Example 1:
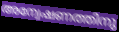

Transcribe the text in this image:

അന്വേഷണത്തിനു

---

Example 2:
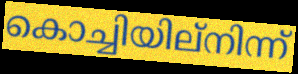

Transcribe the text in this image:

കൊച്ചിയില്നിന്ന്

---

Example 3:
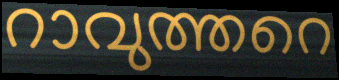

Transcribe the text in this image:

റാവുത്തറെ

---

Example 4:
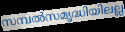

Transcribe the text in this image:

സമ്പൽസമൃദ്ധിയിലല്ല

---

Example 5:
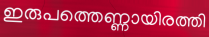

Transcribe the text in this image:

ഇരുപത്തെണ്ണായിരത്തി